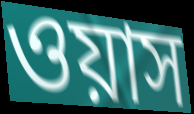
ওয়াস